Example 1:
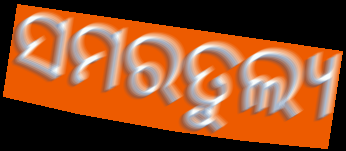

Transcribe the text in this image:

ସମରତୁଲ୍ୟ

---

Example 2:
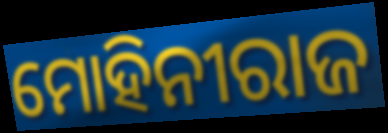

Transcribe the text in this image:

ମୋହିନୀରାଜ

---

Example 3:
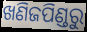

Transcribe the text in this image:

ଖଣିଜପିଣ୍ଡରୁ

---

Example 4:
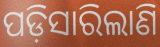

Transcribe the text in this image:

ପଡ଼ିସାରିଲାଣି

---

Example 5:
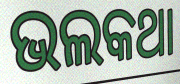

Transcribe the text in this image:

ଭଲକଥା